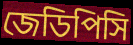
জেডিপিসি